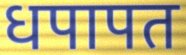
धपापत